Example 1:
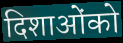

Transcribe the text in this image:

दिशाओंको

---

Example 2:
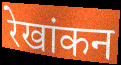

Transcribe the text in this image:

रेखांकन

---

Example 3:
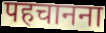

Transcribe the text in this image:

पहचानना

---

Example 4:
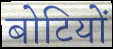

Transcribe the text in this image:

बोटियों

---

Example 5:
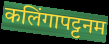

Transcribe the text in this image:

कलिंगापट्टनम